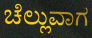
ಚೆಲ್ಲುವಾಗ